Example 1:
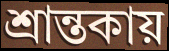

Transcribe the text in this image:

শ্রান্তকায়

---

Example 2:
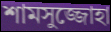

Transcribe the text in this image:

শামসুজ্জোহা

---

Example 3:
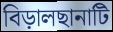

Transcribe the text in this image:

বিড়ালছানাটি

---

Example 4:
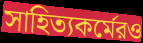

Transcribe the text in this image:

সাহিত্যকর্মেরও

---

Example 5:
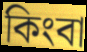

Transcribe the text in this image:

কিংবা